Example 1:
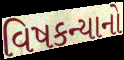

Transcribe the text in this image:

વિષકન્યાનો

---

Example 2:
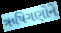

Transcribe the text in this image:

ઋષિગણોને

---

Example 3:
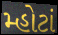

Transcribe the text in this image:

મ્હોટાં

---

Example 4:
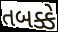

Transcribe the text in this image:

તબક્કે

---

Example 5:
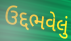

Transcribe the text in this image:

ઉદ્દભવેલું